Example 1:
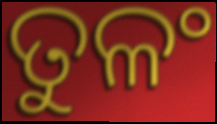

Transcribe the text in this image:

ତୁଳଂ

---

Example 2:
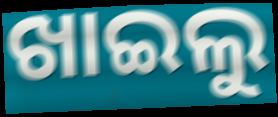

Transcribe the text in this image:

ଖାଇଲୁ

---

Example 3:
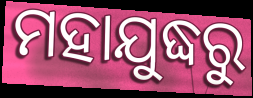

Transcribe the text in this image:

ମହାଯୁଦ୍ଧରୁ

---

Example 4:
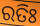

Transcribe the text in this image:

ରତିଃ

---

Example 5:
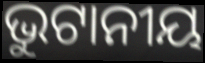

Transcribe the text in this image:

ଭୁଟାନୀୟ